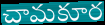
చామకూర